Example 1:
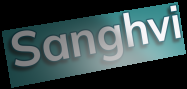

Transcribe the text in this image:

Sanghvi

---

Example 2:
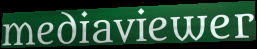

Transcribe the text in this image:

mediaviewer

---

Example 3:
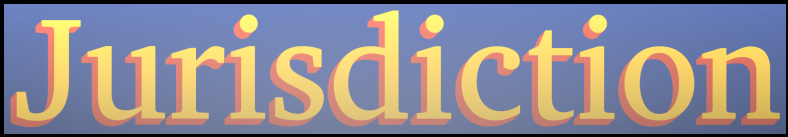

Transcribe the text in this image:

Jurisdiction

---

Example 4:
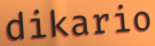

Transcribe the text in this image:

dikario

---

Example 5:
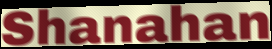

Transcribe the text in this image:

Shanahan